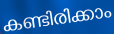
കണ്ടിരിക്കാം